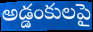
అడ్డంకులపై